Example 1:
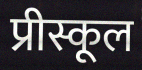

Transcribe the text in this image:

प्रीस्कूल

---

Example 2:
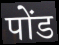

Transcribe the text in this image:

पोंड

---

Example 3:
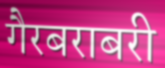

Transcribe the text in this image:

गैरबराबरी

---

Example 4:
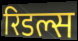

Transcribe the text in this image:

रिडल्स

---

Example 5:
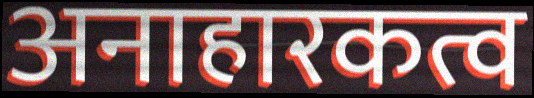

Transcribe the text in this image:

अनाहारकत्व